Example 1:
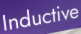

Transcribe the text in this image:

Inductive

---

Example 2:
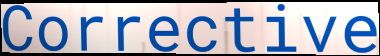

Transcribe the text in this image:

Corrective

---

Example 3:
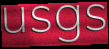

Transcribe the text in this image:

usgs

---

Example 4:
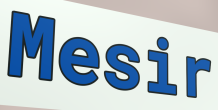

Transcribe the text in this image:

Mesir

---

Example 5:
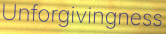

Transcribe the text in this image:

Unforgivingness